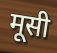
मूसी